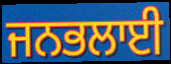
ਜਨਭਲਾਈ